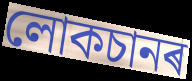
লোকচানৰ